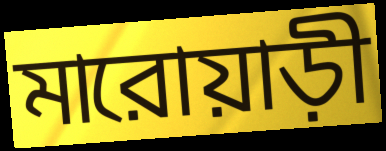
মারোয়াড়ী